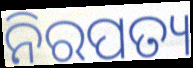
ନିରପତ୍ୟ